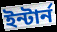
ইন্টার্ন